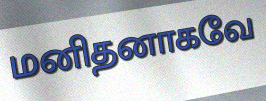
மனிதனாகவே